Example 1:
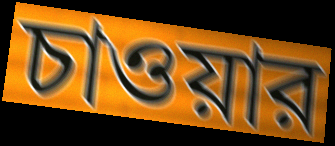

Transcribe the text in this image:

চাওয়ার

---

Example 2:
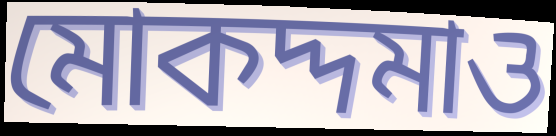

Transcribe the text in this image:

মোকদ্দমাও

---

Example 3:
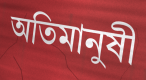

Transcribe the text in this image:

অতিমানুষী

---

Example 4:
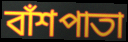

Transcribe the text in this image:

বাঁশপাতা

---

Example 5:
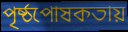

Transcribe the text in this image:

পৃষ্ঠপোষকতায়